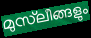
മുസ്‌ലീങ്ങളും